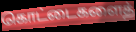
கொட்டைகளைத்